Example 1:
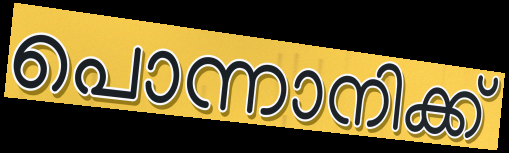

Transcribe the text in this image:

പൊന്നാനിക്ക്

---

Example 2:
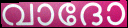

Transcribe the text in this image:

വാദോ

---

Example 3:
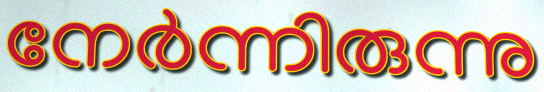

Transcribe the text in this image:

നേർന്നിരുന്നു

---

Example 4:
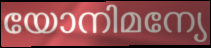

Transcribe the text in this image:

യോനിമന്യേ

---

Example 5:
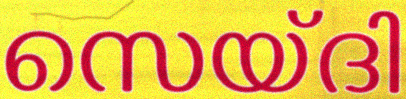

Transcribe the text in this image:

സെയ്ദി